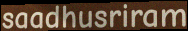
saadhusriram